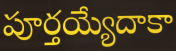
పూర్తయ్యేదాకా